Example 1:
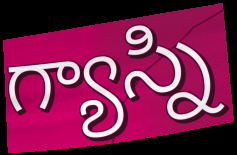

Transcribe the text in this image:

గ్యాస్ని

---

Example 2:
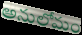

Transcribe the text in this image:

అనులోమం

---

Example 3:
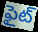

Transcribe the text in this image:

ఫైట్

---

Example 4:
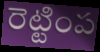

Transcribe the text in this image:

రెట్టింప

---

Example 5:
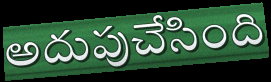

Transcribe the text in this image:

అదుపుచేసింది